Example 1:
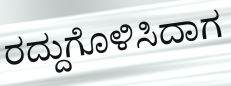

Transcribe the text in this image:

ರದ್ದುಗೊಳಿಸಿದಾಗ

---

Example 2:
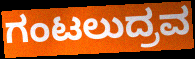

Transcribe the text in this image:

ಗಂಟಲುದ್ರವ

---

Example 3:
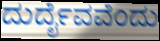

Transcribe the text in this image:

ದುರ್ದೈವವೆಂದು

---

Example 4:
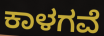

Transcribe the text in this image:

ಕಾಳಗವೆ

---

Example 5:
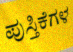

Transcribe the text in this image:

ಪುಸ್ತಿಕೆಗಳ